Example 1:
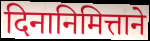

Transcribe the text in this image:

दिनानिमित्ताने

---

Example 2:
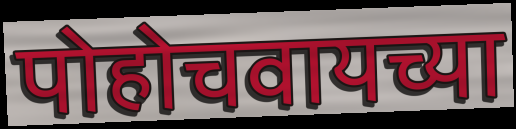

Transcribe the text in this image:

पोहोचवायच्या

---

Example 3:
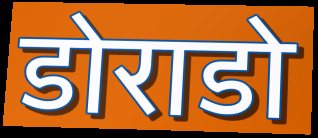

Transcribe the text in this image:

डोराडो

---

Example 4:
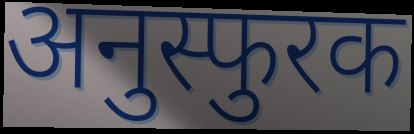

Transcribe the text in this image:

अनुस्फुरक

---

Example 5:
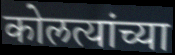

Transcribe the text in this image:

कोलत्यांच्या